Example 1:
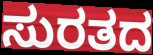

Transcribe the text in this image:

ಸುರತದ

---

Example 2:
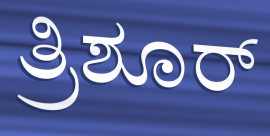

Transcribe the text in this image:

ತ್ರಿಶೂರ್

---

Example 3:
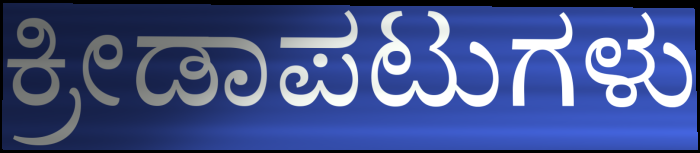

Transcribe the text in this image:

ಕ್ರೀಡಾಪಟುಗಳು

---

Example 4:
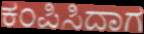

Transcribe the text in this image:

ಕಂಪಿಸಿದಾಗ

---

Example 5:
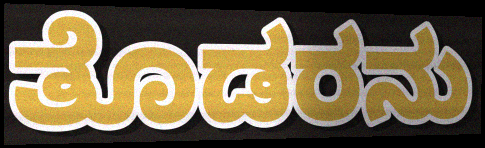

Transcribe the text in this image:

ತೊಡರನು